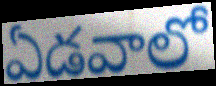
ఏడవాలో